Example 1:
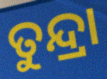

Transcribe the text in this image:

ତୁନ୍ଦ୍ରା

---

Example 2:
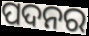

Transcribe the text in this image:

ପଦନର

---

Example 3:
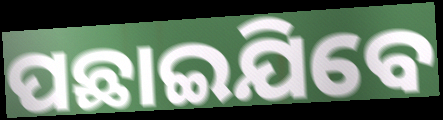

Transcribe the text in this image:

ପଛାଇଯିବେ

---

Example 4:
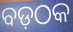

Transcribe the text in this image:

ବଡ଼ଠକ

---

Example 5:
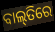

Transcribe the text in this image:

ବାଲ୍‌ତିରେ